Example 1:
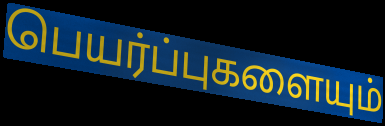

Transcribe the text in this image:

பெயர்ப்புகளையும்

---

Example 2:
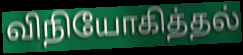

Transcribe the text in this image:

விநியோகித்தல்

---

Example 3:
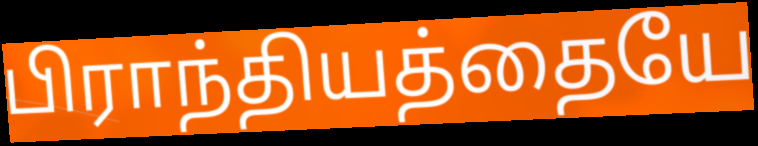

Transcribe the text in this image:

பிராந்தியத்தையே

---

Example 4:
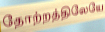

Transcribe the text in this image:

தோற்றத்திலேயே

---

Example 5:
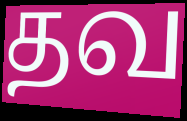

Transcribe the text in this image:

தவ